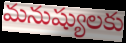
మనుష్యులకు